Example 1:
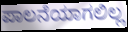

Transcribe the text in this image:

ಪಾಲನೆಯಾಗಲಿಲ್ಲ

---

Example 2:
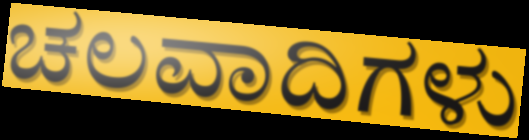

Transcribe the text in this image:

ಚಲವಾದಿಗಳು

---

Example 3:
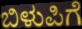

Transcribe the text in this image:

ಬಿಳುಪಿಗೆ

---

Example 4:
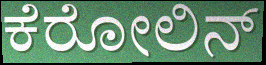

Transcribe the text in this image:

ಕೆರೋಲಿನ್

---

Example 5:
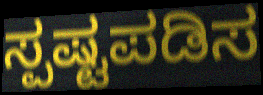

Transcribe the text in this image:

ಸ್ಪಷ್ಟಪಡಿಸ